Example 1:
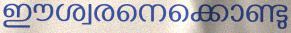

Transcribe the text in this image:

ഈശ്വരനെക്കൊണ്ടു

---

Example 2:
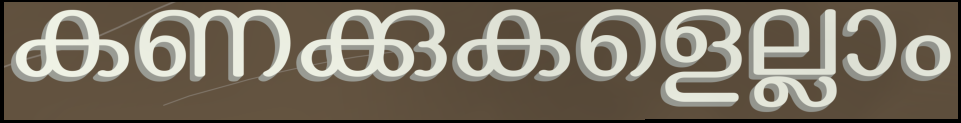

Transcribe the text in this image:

കണക്കുകളെല്ലാം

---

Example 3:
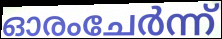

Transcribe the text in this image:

ഓരംചേർന്ന്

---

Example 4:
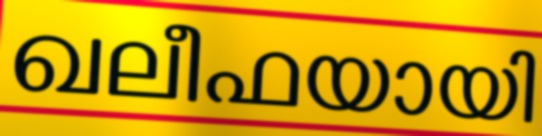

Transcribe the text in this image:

ഖലീഫയായി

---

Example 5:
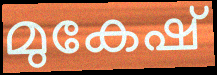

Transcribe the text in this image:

മുകേഷ്